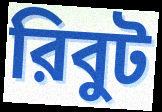
রিবুট